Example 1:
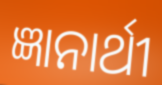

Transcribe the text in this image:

ଜ୍ଞାନାର୍ଥୀ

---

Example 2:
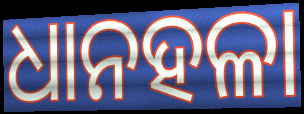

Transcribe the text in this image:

ଧାନହଳା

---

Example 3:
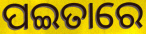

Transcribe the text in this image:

ପଇତାରେ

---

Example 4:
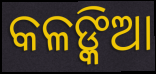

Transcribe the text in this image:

କଳଙ୍କିଆ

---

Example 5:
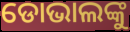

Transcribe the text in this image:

ଡୋଭାଲଙ୍କୁ